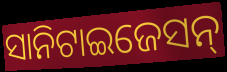
ସାନିଟାଇଜେସନ୍